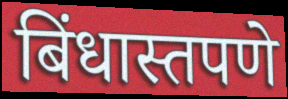
बिंधास्तपणे